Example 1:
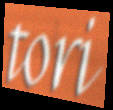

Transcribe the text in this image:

tori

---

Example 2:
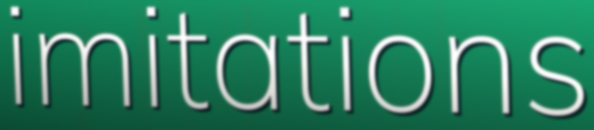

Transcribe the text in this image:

imitations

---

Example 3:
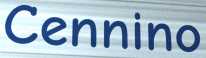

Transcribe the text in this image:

Cennino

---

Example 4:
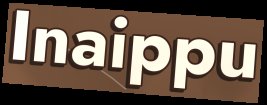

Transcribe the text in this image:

Inaippu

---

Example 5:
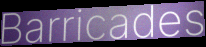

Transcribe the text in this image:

Barricades